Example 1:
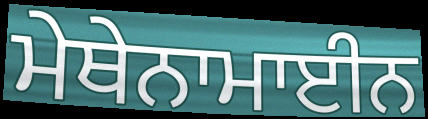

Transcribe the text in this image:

ਮੇਥੇਨਾਮਾਈਨ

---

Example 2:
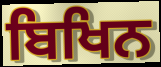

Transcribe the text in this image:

ਬਿਖਿਨ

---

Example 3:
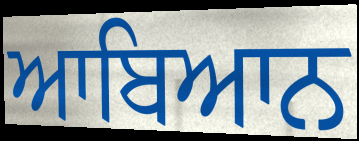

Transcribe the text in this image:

ਆਬਿਆਨ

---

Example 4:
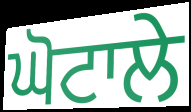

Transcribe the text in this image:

ਘੋਟਾਲੇ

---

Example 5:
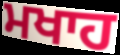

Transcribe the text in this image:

ਮਖਾਹ